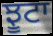
ਝੂਟਾ